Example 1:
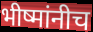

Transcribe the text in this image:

भीष्मांनीच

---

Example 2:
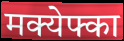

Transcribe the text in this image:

मक्येफ्का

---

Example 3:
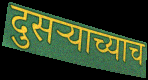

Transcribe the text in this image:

दुसऱ्याच्याच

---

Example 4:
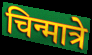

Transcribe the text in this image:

चिन्मात्रे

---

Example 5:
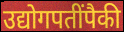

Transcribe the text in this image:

उद्योगपतींपैकी